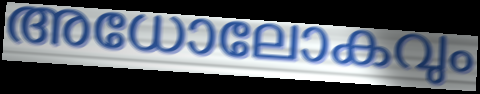
അധോലോകവും